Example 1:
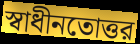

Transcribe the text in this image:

স্বাধীনতোত্তর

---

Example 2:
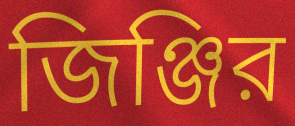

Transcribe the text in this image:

জিঞ্জির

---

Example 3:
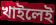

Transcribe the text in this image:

খাইলেই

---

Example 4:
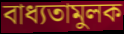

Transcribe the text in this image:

বাধ্যতামুলক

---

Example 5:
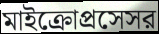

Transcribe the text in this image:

মাইক্রোপ্রসেসর